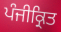
ਪੰਜੀਕ੍ਰਿਤ